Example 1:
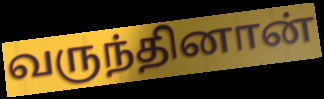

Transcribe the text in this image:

வருந்தினான்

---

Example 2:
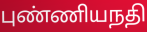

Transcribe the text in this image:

புண்ணியநதி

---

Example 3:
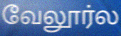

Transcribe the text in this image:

வேலூர்ல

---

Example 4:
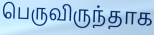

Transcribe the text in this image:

பெருவிருந்தாக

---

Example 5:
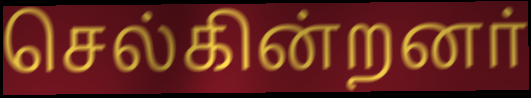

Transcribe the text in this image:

செல்கின்றனர்